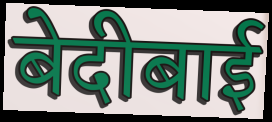
बेदीबाई